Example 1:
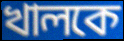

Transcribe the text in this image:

খালকে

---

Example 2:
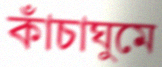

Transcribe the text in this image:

কাঁচাঘুমে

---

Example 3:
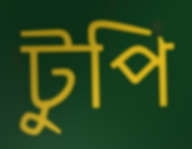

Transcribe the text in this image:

টুপি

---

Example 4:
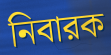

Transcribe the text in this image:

নিবারক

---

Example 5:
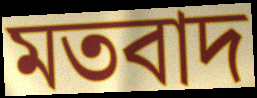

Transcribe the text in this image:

মতবাদ